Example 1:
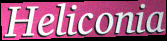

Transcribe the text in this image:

Heliconia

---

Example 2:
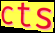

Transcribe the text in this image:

cts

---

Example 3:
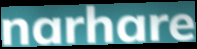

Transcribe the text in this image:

narhare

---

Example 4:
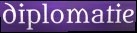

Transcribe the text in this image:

diplomatie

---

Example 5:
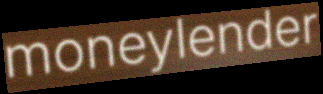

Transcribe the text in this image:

moneylender